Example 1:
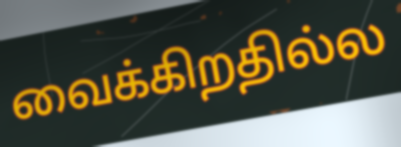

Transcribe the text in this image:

வைக்கிறதில்ல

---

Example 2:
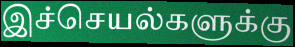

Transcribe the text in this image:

இச்செயல்களுக்கு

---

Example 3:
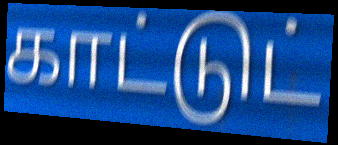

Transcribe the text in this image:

காட்டுட்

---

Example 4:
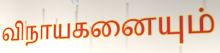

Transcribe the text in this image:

விநாயகனையும்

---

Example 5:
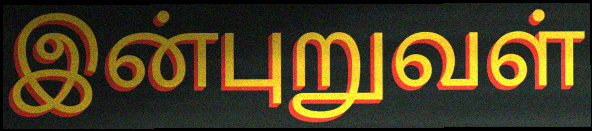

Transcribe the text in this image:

இன்புறுவள்